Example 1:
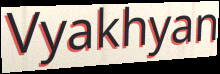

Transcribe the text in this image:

Vyakhyan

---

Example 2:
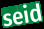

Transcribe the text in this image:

seid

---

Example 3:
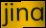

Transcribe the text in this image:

jina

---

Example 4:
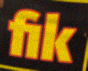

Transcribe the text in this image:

fik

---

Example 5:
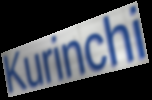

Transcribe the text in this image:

Kurinchi